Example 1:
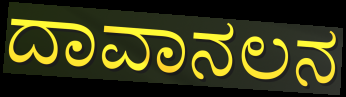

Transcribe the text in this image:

ದಾವಾನಲನ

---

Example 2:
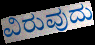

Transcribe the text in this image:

ವಿರುವುದು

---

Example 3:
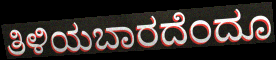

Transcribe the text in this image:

ತಿಳಿಯಬಾರದೆಂದೂ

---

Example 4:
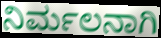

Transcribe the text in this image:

ನಿರ್ಮಲನಾಗಿ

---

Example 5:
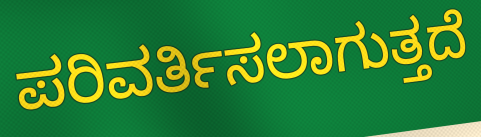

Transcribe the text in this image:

ಪರಿವರ್ತಿಸಲಾಗುತ್ತದೆ